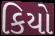
કિયો